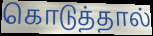
கொடுத்தால்